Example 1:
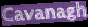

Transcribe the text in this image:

Cavanagh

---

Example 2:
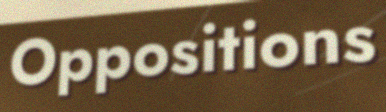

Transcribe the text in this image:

Oppositions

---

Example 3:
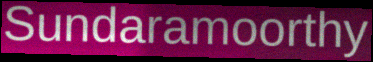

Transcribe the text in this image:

Sundaramoorthy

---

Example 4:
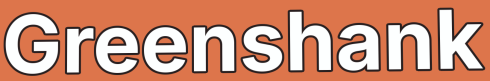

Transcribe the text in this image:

Greenshank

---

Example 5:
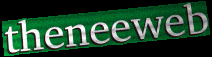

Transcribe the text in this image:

theneeweb